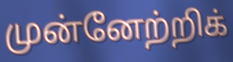
முன்னேற்றிக்